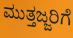
ಮುತ್ತಜ್ಜರಿಗೆ